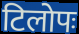
टिलोपः